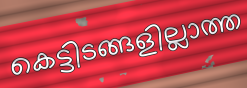
കെട്ടിടങ്ങളില്ലാത്ത